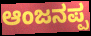
ಆಂಜನಪ್ಪ